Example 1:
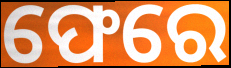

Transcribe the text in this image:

ଫେରେ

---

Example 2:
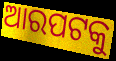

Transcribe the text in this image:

ଆରପଟକୁ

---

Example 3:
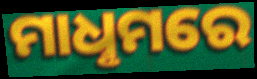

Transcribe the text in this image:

ମାଧୢମରେ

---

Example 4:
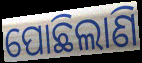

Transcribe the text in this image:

ପୋଛିଲାଣି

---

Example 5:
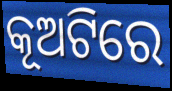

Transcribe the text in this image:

କୂଅଟିରେ